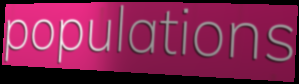
populations